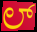
ಲ್